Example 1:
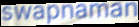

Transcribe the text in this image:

swapnaman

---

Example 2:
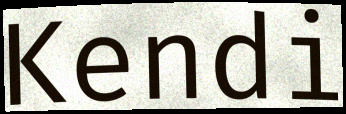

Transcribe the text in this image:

Kendi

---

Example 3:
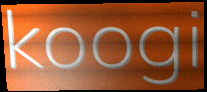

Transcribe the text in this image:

koogi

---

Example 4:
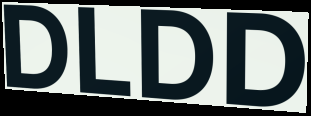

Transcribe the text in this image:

DLDD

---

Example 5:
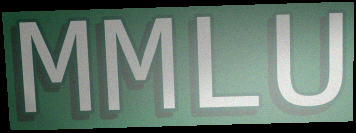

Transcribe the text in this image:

MMLU